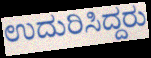
ಉದುರಿಸಿದ್ದರು